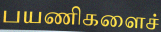
பயணிகளைச்